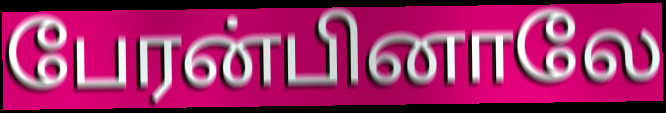
பேரன்பினாலே